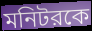
মনিটরকে